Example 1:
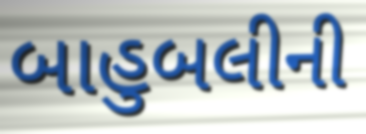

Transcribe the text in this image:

બાહુબલીની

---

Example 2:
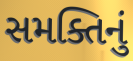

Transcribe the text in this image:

સમક્તિનું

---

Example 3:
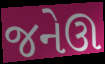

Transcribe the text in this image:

જનેઊ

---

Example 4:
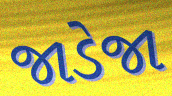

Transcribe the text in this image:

જાડેજા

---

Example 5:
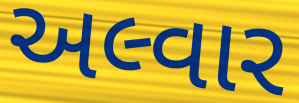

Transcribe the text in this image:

અલ્વાર